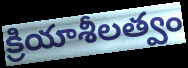
క్రియాశీలత్వం